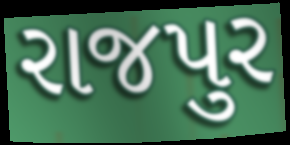
રાજપુર